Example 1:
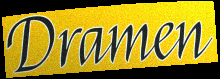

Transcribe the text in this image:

Dramen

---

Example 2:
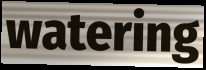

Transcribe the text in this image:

watering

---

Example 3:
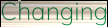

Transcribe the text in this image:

Changing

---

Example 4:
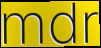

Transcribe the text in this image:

mdr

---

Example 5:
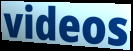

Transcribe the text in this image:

videos